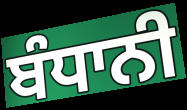
ਬੰਧਾਨੀ